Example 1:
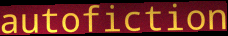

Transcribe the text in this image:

autofiction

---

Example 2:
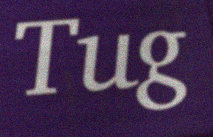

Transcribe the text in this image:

Tug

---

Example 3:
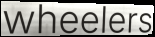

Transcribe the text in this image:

wheelers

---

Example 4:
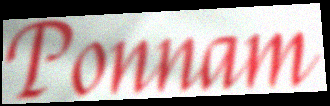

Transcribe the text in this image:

Ponnam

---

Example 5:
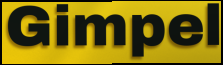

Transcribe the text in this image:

Gimpel